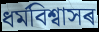
ধৰ্মবিশ্বাসৰ